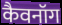
कैवनॉग